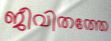
ജീവിതത്തേ